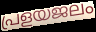
പ്രളയജലം